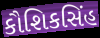
કૌશિકસિંહ